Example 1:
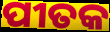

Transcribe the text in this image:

ପୀତକ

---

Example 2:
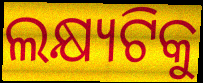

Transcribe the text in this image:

ଲକ୍ଷ୍ୟଟିକୁ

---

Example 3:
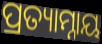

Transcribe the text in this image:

ପ୍ରତ୍ୟାମ୍ନାୟ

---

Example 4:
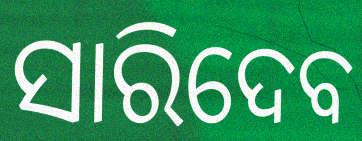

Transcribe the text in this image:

ସାରିଦେବ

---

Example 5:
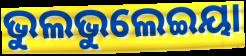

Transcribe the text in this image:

ଭୁଲଭୁଲେଇୟା